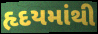
હૃદયમાંથી